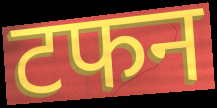
टफन